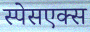
स्पेसएक्स